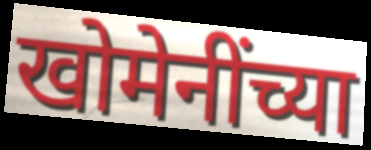
खोमेनींच्या